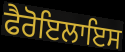
ਫੈਰੋਇਲਾਇਸ